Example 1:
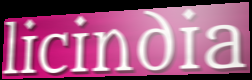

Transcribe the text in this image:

licindia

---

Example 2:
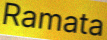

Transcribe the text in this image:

Ramata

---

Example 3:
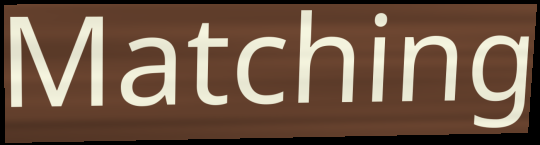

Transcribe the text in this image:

Matching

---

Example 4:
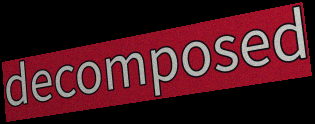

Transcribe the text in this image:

decomposed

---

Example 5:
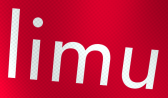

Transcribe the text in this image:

limu